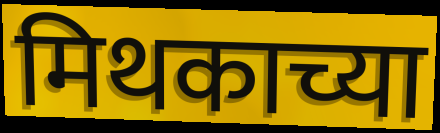
मिथकाच्या